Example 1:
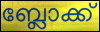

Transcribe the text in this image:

ബ്ലോക്ക്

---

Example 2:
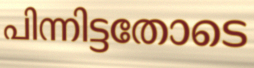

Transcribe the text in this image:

പിന്നിട്ടതോടെ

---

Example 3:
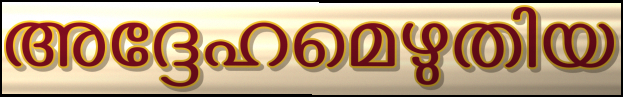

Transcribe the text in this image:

അദ്ദേഹമെഴുതിയ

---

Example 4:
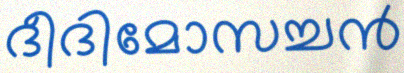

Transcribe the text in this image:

ദീദിമോസച്ചൻ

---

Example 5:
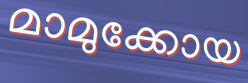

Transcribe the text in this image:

മാമുക്കോയ